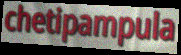
chetipampula